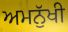
ਅਮਨੁੱਖੀ